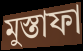
মুস্তাফা